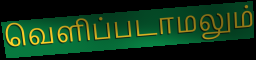
வெளிப்படாமலும்